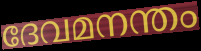
ദേവമനന്തം